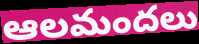
ఆలమందలు